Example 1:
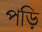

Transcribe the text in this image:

পড়ি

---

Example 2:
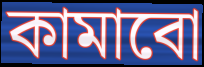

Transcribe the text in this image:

কামাবো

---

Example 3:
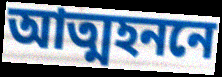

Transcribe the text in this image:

আত্মহননে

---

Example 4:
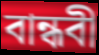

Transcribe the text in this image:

বান্ধবী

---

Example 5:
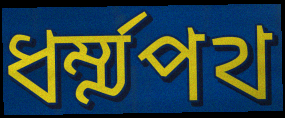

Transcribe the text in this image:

ধর্ম্মপথ